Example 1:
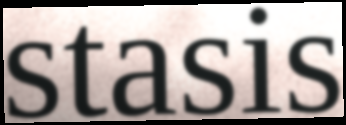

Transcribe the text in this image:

stasis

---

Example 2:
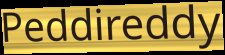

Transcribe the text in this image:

Peddireddy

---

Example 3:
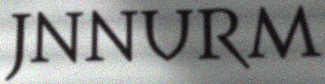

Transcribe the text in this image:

JNNURM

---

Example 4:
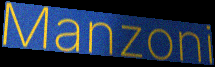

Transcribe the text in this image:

Manzoni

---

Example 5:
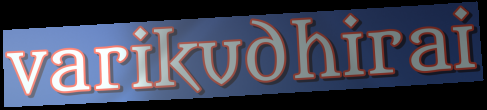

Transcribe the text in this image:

varikudhirai